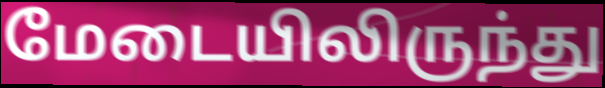
மேடையிலிருந்து